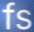
fs